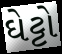
ઘેટ્ટો